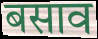
बसाव